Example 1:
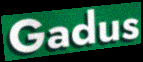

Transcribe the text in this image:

Gadus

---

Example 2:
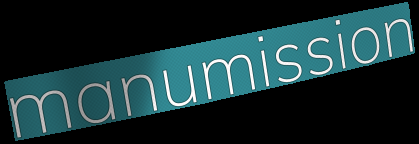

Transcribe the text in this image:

manumission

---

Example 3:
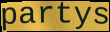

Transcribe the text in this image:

partys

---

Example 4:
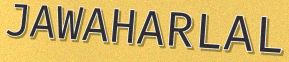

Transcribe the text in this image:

JAWAHARLAL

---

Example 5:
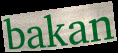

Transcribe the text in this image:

bakan